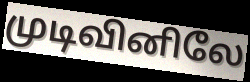
முடிவினிலே